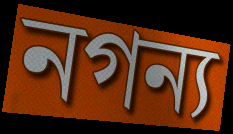
নগন্য